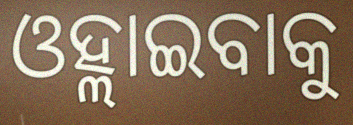
ଓହ୍ଲାଇବାକୁ